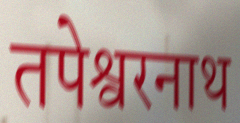
तपेश्वरनाथ